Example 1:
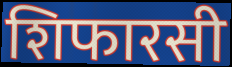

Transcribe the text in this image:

शिफारसी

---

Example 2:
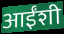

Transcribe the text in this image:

आईंशी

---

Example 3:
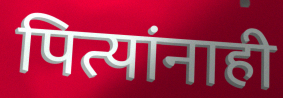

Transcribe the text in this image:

पित्यांनाही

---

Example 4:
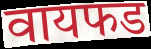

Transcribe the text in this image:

वायफड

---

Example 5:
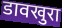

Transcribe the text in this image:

डावखुरा